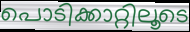
പൊടിക്കാറ്റിലൂടെ